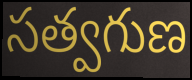
సత్వగుణ